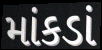
માંકડાં